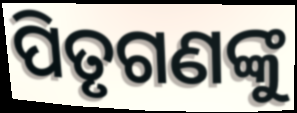
ପିତୃଗଣଙ୍କୁ